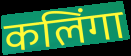
कलिंगा